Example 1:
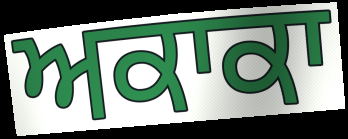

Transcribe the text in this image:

ਅਕਾਕਾ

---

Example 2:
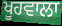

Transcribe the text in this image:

ਖੂਹਵਾਲਾ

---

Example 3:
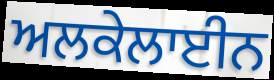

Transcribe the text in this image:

ਅਲਕੇਲਾਈਨ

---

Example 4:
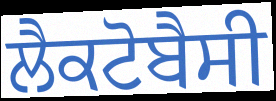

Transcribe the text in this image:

ਲੈਕਟੋਬੈਸੀ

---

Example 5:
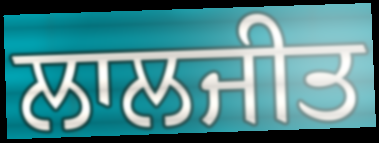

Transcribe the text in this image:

ਲਾਲਜੀਤ